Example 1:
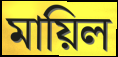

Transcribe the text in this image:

মায়িল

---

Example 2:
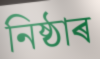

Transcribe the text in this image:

নিষ্ঠাৰ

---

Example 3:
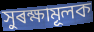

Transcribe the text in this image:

সুৰক্ষামূলক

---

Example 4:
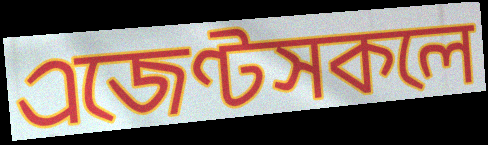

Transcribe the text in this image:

এজেণ্টসকলে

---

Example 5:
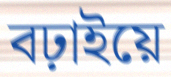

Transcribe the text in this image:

বঢ়াইয়ে